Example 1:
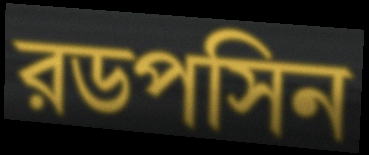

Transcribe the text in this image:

রডপসিন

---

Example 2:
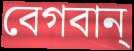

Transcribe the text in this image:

বেগবান্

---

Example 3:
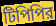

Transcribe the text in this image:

টিপিপির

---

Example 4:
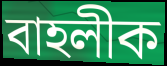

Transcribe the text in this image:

বাহলীক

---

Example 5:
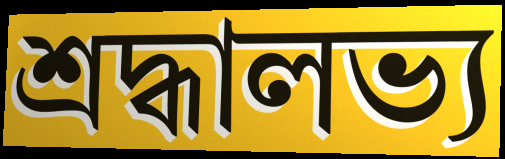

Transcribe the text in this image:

শ্রদ্ধালভ্য